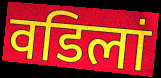
वडिलां